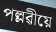
পল্লৱীয়ে